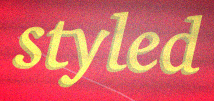
styled